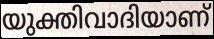
യുക്തിവാദിയാണ്